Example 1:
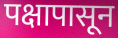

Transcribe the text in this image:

पक्षापासून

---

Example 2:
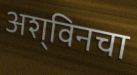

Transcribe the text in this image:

अश्विनचा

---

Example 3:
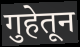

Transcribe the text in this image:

गुहेतून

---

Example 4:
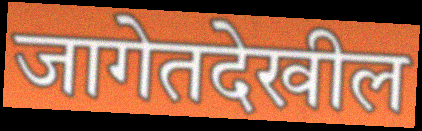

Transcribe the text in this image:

जागेतदेखील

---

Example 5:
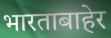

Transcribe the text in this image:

भारताबाहेर